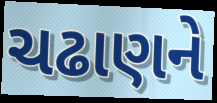
ચઢાણને